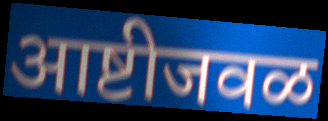
आष्टीजवळ